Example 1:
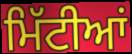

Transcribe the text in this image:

ਮਿੱਟੀਆਂ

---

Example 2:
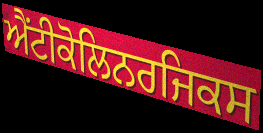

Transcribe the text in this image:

ਐਂਟੀਕੋਲਿਨਰਜਿਕਸ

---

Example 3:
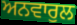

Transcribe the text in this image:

ਅਨਵਾਰੁਲ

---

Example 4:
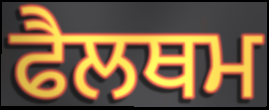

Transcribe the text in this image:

ਫੈਲਥਮ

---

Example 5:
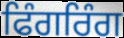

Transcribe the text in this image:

ਫਿੰਗਰਿੰਗ